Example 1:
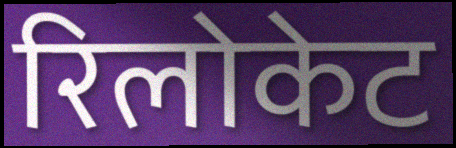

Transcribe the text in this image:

रिलोकेट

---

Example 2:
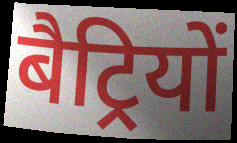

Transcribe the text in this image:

बैट्रियों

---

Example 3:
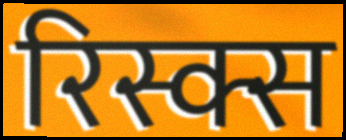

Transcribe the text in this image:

रिस्क्स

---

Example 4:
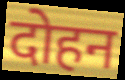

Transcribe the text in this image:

दोहन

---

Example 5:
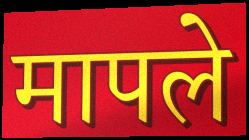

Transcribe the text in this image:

मापले